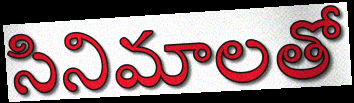
సినిమాలతో